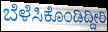
ಬೆಳೆಸಿಕೊಂಡಿದ್ದೀರಿ